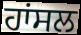
ਹਾਂਸਲ